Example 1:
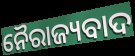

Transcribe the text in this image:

ନୈରାଜ୍ୟବାଦ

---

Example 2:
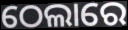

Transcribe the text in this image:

ଠେଲାରେ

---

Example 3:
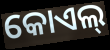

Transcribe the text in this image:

କୋଏଲ୍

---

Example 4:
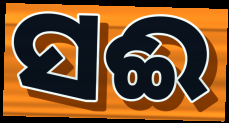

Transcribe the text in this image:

ସଈ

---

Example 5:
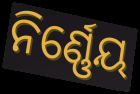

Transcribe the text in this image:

ନିର୍ଣ୍ଣେୟ